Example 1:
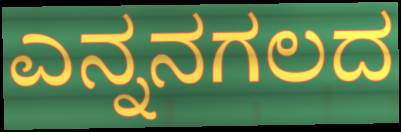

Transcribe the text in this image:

ಎನ್ನನಗಲದ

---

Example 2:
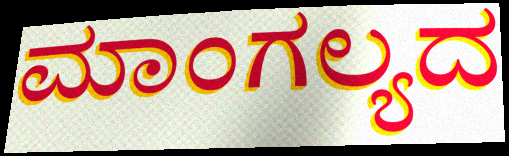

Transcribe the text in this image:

ಮಾಂಗಲ್ಯದ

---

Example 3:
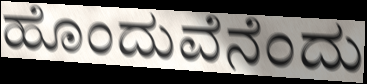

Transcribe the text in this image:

ಹೊಂದುವೆನೆಂದು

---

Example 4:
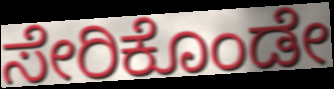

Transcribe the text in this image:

ಸೇರಿಕೊಂಡೇ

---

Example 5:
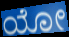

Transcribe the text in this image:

ಯೋ